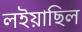
লইয়াছিল